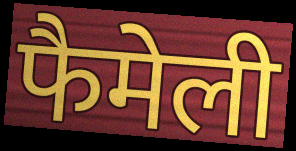
फैमेली